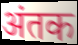
अंतक